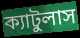
ক্যাটুলাস